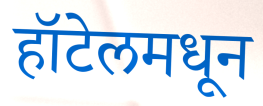
हॉटेलमधून